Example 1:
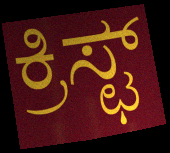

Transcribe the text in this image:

ಕ್ರಿಸ್ಟ್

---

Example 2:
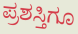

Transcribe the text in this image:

ಪ್ರಶಸ್ತಿಗೂ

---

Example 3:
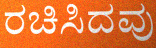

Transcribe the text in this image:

ರಚಿಸಿದವು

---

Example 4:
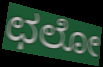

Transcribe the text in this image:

ಛಲೋ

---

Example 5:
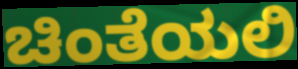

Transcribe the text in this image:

ಚಿಂತೆಯಲಿ